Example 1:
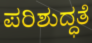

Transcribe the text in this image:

ಪರಿಶುದ್ಧತೆ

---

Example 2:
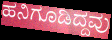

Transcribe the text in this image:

ಹನಿಗೂಡಿದ್ದವು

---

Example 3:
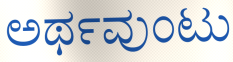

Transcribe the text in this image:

ಅರ್ಥವುಂಟು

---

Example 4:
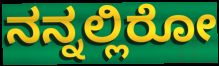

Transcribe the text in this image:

ನನ್ನಲ್ಲಿರೋ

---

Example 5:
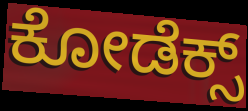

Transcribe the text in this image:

ಕೋಡೆಕ್ಸ್